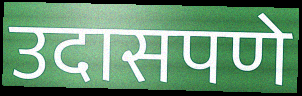
उदासपणे